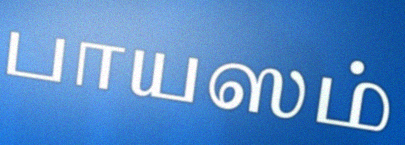
பாயஸம்